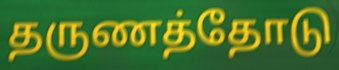
தருணத்தோடு